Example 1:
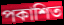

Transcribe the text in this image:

পকাশিত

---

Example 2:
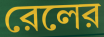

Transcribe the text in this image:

রেলের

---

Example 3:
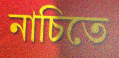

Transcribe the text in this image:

নাচিতে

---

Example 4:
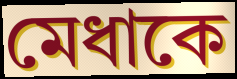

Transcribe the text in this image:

মেধাকে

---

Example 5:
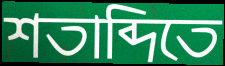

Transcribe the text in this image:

শতাব্দিতে